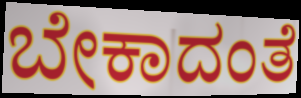
ಬೇಕಾದಂತೆ